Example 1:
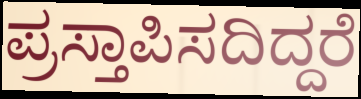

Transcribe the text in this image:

ಪ್ರಸ್ತಾಪಿಸದಿದ್ದರೆ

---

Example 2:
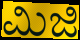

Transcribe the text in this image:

ಮಿಜಿ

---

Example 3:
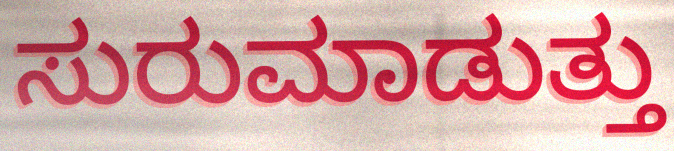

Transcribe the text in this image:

ಸುರುಮಾಡುತ್ತು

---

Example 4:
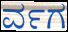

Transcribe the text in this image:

ರ್ವಗ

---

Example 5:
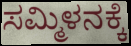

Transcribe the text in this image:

ಸಮ್ಮಿಳನಕ್ಕೆ